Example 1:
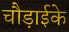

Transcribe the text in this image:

चौड़ाईके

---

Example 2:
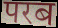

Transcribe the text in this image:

परब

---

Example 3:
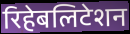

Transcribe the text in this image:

रिहेबलिटेशन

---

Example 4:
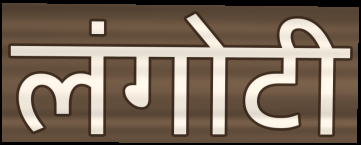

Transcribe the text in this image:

लंगोटी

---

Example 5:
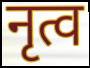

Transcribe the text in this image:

नृत्व